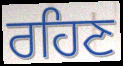
ਰਹਿਣ